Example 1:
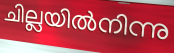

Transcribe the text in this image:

ചില്ലയിൽനിന്നു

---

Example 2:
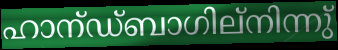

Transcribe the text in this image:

ഹാന്ഡ്ബാഗില്നിന്നു്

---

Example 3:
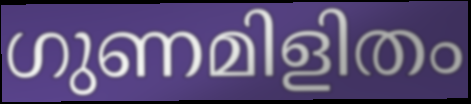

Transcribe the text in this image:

ഗുണമിളിതം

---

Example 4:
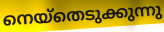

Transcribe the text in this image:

നെയ്തെടുക്കുന്നു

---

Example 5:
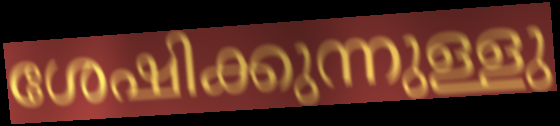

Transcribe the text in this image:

ശേഷിക്കുന്നുള്ളു